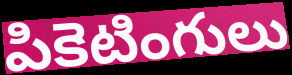
పికెటింగులు